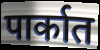
पार्कात